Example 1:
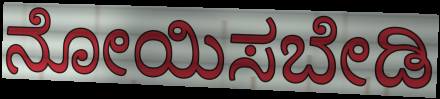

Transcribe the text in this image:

ನೋಯಿಸಬೇಡಿ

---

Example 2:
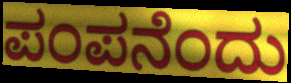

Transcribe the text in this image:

ಪಂಪನೆಂದು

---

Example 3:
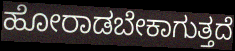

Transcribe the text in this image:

ಹೋರಾಡಬೇಕಾಗುತ್ತದೆ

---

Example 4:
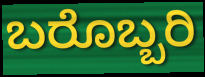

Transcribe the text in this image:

ಬರೊಬ್ಬರಿ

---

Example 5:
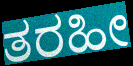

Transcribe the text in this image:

ತರಹೀ